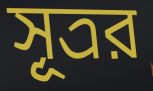
সূত্রর